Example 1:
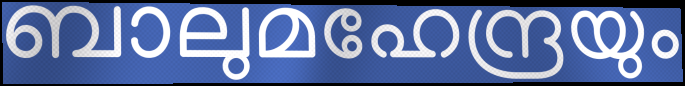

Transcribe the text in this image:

ബാലുമഹേന്ദ്രയും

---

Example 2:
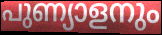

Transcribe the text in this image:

പുണ്യാളനും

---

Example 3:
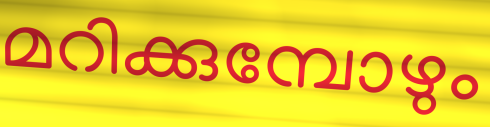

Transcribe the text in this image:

മറിക്കുമ്പോഴും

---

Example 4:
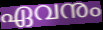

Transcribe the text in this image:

ഏവനും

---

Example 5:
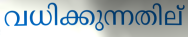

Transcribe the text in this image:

വധിക്കുന്നതില്